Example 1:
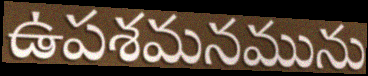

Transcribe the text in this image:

ఉపశమనమును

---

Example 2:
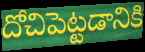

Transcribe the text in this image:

దోచిపెట్టడానికి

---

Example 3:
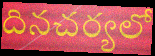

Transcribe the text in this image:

దినచర్యలో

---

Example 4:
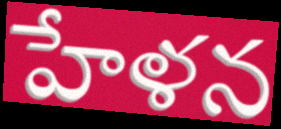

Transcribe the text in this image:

హేళన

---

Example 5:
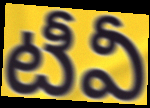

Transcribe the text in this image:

టీవీ